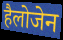
हैलोजेन